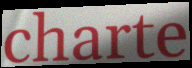
charte